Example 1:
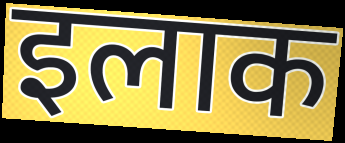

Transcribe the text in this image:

इलाक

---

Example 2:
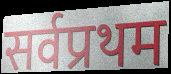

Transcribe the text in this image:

सर्वप्रथम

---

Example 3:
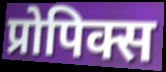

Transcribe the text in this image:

प्रोपिक्स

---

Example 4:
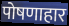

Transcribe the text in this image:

पोषणाहार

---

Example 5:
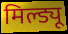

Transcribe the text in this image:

मिल्ड्यू